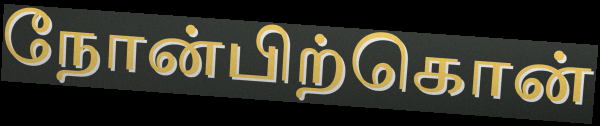
நோன்பிற்கொன்